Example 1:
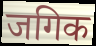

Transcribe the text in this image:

जगिक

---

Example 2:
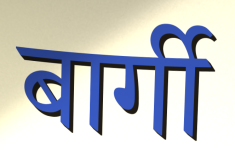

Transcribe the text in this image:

बार्गी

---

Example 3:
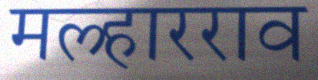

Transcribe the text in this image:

मल्हारराव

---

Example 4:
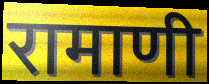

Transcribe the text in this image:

रामाणी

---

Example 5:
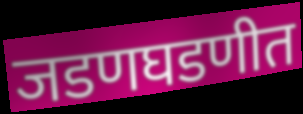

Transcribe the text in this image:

जडणघडणीत